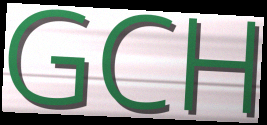
GCH